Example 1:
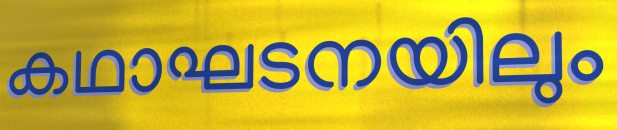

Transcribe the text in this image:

കഥാഘടനയിലും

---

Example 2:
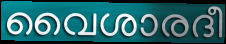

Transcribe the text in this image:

വൈശാരദീ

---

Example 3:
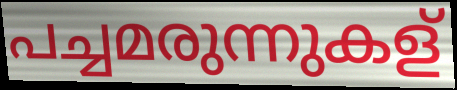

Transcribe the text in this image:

പച്ചമരുന്നുകള്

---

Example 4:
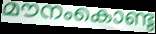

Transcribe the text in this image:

മൗനംകൊണ്ടു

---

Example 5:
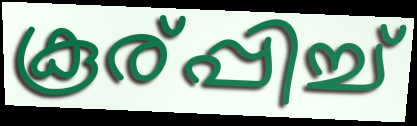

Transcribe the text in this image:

കൂര്പ്പിച്ച്